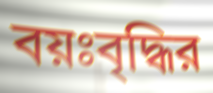
বয়ঃবৃদ্ধির